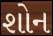
શોન